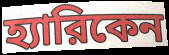
হ্যারিকেন